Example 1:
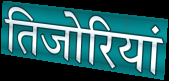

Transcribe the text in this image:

तिजोरियां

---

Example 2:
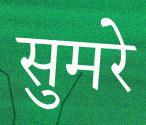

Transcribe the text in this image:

सुमरे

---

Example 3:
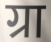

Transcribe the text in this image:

ग्रा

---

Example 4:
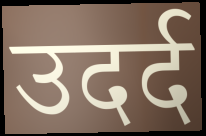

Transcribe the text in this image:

उदर्द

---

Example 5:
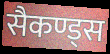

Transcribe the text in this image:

सैकण्ड्स